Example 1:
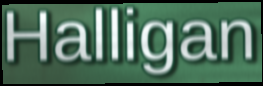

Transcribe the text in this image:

Halligan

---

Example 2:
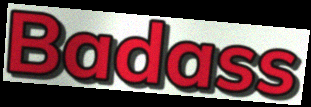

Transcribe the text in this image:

Badass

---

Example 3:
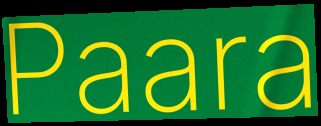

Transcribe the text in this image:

Paara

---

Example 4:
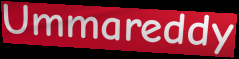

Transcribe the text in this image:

Ummareddy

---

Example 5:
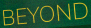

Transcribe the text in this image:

BEYOND